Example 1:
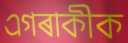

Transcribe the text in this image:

এগৰাকীক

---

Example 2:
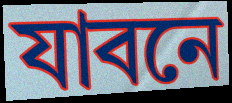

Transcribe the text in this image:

যাবনে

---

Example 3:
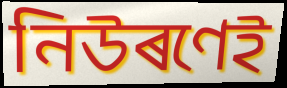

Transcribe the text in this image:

নিউৰণেই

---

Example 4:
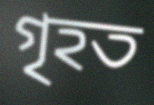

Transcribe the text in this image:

গৃহত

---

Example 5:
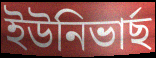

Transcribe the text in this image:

ইউনিভাৰ্ছ